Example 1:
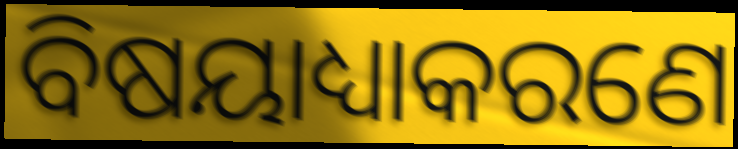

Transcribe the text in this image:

ବିଷୟାଧ୍ୟାକରଣେ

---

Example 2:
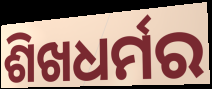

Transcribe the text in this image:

ଶିଖଧର୍ମର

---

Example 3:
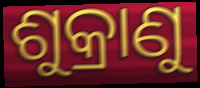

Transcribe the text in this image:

ଶୁକ୍ରାଣୁ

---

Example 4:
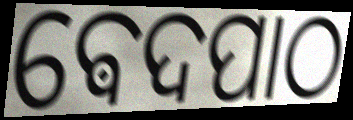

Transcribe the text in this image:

ଵେଦପାଠ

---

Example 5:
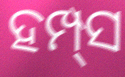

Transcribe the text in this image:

ହମ୍ପ୍‌ସ